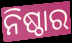
ନିଷ୍ଠାର